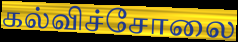
கல்விச்சோலை